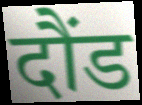
दौंड